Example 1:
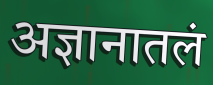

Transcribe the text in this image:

अज्ञानातलं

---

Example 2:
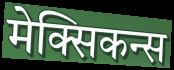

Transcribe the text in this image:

मेक्सिकन्स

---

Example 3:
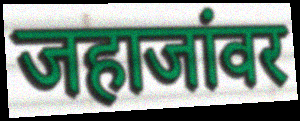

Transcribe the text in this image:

जहाजांवर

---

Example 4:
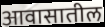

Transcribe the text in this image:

आवासातील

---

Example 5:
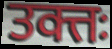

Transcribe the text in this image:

उक्तः